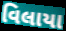
વિલાયા